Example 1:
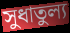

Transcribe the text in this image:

সুধাতুল্য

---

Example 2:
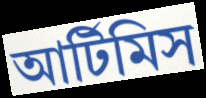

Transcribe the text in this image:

আর্টিমিস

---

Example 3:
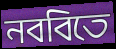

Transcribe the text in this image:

নববিতে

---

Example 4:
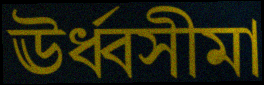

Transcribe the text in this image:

ঊর্ধ্বসীমা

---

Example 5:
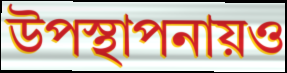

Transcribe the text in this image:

উপস্থাপনায়ও